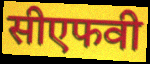
सीएफवी